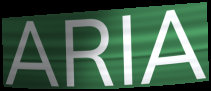
ARIA